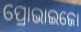
ପ୍ରୋଭାଇଜୋ